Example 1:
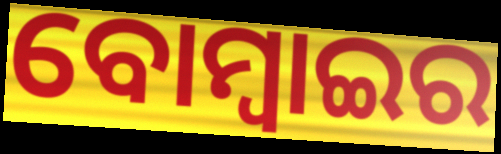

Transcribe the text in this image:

ବୋମ୍ବାଇର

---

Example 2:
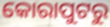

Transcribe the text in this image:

କୋରାପୁଟରୁ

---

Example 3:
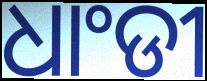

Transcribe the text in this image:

ଧାଂଡୀ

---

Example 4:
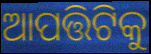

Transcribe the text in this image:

ଆପତ୍ତିଟିକୁ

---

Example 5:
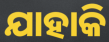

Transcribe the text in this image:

ଯାହାକି